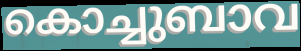
കൊച്ചുബാവ